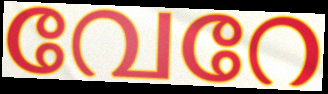
വേറേ